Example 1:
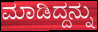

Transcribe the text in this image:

ಮಾಡಿದ್ದನ್ನು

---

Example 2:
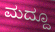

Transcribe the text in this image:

ಮದ್ದೂ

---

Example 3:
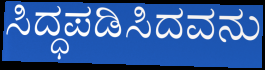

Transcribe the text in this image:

ಸಿದ್ಧಪಡಿಸಿದವನು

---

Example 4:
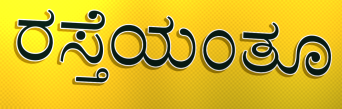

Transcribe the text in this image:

ರಸ್ತೆಯಂತೂ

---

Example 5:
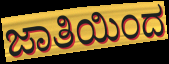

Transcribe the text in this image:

ಜಾತಿಯಿಂದ